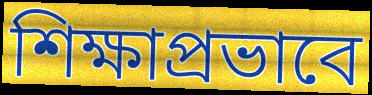
শিক্ষাপ্রভাবে